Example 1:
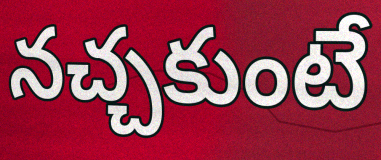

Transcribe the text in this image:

నచ్చకుంటే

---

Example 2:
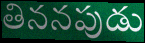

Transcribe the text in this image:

తిననపుడు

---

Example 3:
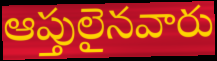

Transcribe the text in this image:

ఆప్తులైనవారు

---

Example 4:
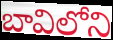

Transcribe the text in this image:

బావిలోని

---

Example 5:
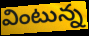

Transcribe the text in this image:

వింటున్న